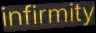
infirmity